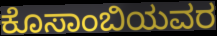
ಕೊಸಾಂಬಿಯವರ